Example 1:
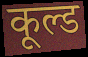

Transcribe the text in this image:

कूल्ड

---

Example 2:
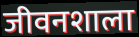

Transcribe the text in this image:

जीवनशाला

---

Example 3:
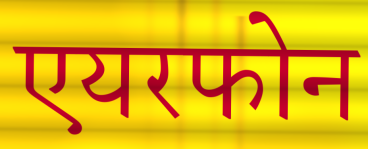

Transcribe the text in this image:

एयरफोन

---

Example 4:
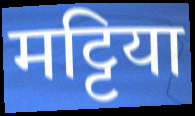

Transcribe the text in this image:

मट्टिया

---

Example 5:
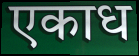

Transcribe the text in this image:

एकाध